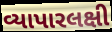
વ્યાપારલક્ષી